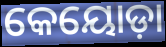
କେୟୋଡ଼ା